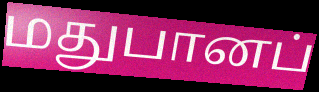
மதுபானப்